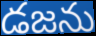
డజను